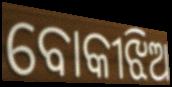
ବୋକୀଝିଅ